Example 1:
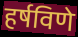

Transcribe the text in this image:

हर्षविणे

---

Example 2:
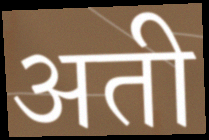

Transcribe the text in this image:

अती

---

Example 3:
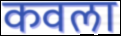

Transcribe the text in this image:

कवला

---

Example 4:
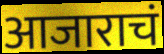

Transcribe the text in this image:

आजाराचं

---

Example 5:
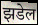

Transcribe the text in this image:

झडेल